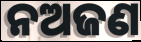
ନଅଜଣ